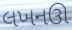
લખનઊ